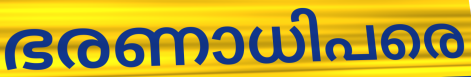
ഭരണാധിപരെ